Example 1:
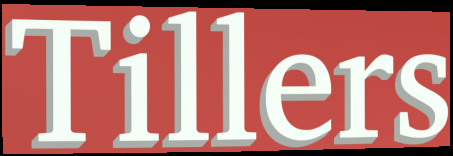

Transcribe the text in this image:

Tillers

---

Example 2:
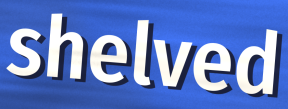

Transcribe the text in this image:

shelved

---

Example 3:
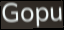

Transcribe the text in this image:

Gopu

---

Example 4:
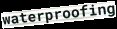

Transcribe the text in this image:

waterproofing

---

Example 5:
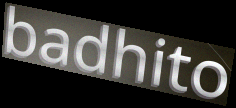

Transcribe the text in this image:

badhito